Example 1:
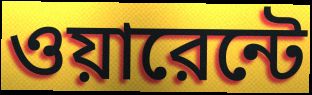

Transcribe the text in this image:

ওয়ারেন্টে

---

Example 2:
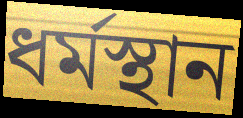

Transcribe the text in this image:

ধর্মস্থান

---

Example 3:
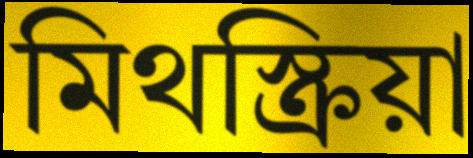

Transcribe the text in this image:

মিথস্ক্রিয়া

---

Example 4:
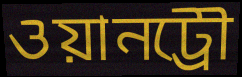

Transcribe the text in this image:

ওয়ানট্রৌ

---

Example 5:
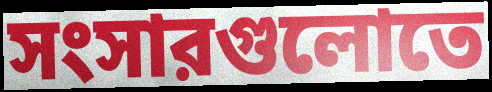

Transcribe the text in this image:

সংসারগুলোতে